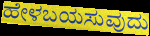
ಹೇಳಬಯಸುವುದು